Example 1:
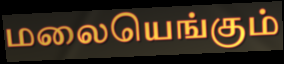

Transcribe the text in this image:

மலையெங்கும்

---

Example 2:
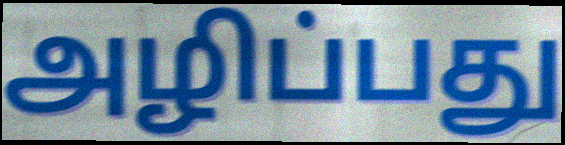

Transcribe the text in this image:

அழிப்பது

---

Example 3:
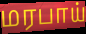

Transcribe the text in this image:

மரபாய்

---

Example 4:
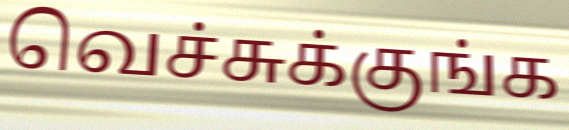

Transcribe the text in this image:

வெச்சுக்குங்க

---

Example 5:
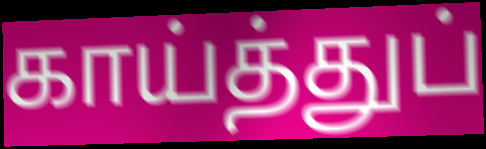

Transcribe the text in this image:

காய்த்துப்